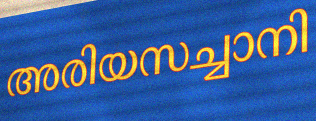
അരിയസച്ചാനി